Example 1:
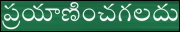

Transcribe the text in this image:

ప్రయాణించగలదు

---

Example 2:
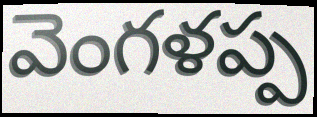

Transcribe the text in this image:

వెంగళప్ప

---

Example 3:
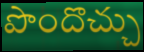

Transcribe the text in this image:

పొందొచ్చు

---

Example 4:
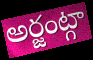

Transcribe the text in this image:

అర్జంట్గా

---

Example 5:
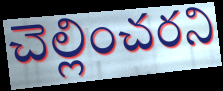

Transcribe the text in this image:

చెల్లించరని